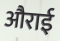
औराई